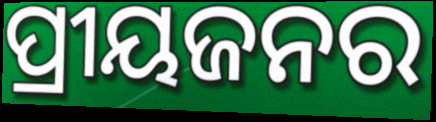
ପ୍ରୀୟଜନର